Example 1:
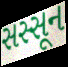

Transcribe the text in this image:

સસ્સૂન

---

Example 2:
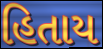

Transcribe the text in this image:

હિતાય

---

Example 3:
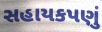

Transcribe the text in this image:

સહાયકપણું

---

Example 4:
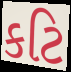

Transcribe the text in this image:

કટિ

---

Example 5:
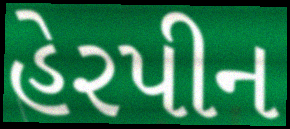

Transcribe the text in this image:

હેરપીન